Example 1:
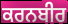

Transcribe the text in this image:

ਕਰਨਬੀਰ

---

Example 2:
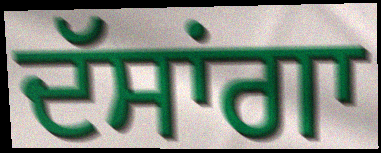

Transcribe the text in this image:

ਦੱਸਾਂਗਾ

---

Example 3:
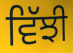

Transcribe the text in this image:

ਵਿੱਝੀ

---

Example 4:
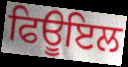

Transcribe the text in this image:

ਫਿਊਇਲ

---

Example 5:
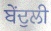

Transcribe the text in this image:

ਬੇਂਦੁਲੀ